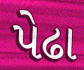
પેઢા